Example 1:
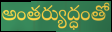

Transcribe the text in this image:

అంతర్యుద్ధంతో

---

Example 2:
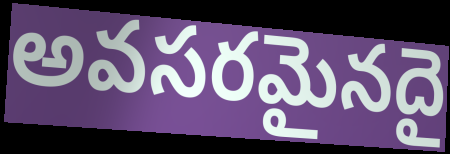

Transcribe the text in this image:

అవసరమైనదై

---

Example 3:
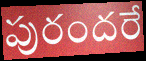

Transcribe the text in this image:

పురందరే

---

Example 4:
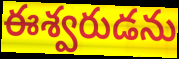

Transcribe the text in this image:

ఈశ్వరుడను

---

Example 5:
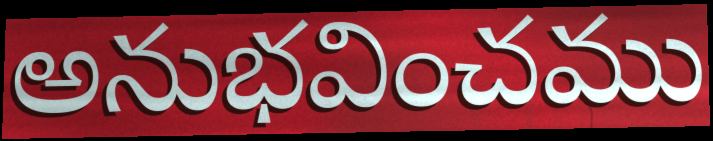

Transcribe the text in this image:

అనుభవించము